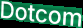
Dotcom